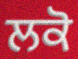
ਲਕੋ